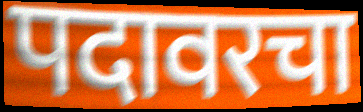
पदावरचा